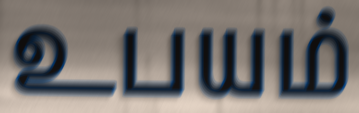
உபயம்